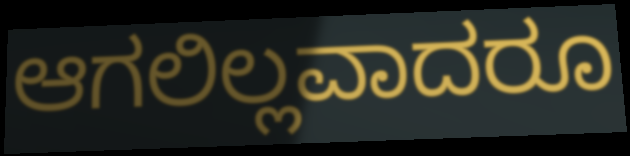
ಆಗಲಿಲ್ಲವಾದರೂ